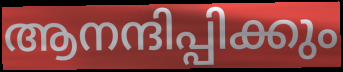
ആനന്ദിപ്പിക്കും